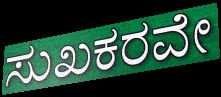
ಸುಖಕರವೇ